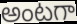
అంటగా